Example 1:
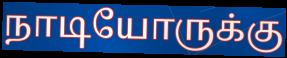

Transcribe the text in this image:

நாடியோருக்கு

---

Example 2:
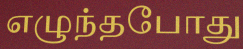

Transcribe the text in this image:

எழுந்தபோது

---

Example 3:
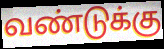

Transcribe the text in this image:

வண்டுக்கு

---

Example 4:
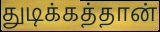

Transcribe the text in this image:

துடிக்கத்தான்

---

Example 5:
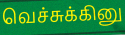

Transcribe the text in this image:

வெச்சுக்கினு